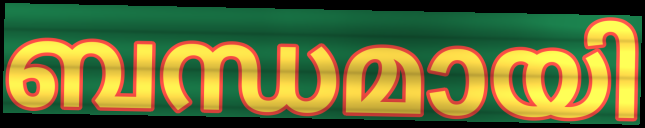
ബന്ധമായി